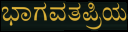
ಭಾಗವತಪ್ರಿಯ